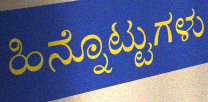
ಹಿನ್ನೊಟ್ಟುಗಳು